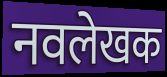
नवलेखक